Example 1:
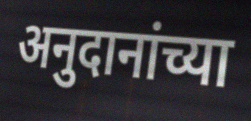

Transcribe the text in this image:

अनुदानांच्या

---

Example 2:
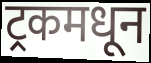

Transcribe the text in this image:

ट्रकमधून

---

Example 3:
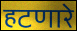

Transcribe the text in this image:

हटणारे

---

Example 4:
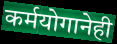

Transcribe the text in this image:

कर्मयोगानेही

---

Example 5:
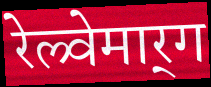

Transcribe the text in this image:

रेल्वेमार्ग